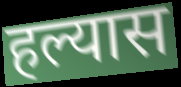
हल्यास